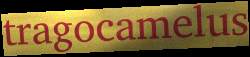
tragocamelus